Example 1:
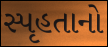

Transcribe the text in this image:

સ્પૃહતાનો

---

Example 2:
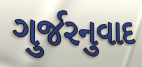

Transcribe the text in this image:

ગુર્જરનુવાદ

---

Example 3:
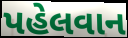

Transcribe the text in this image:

પહેલવાન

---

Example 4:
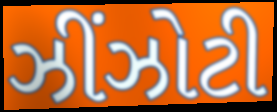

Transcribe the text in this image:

ઝીંઝોટી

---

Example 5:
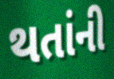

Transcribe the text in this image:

થતાંની